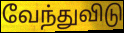
வேந்துவிடு